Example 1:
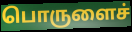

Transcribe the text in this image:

பொருளைச்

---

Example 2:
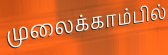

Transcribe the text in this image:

முலைக்காம்பில்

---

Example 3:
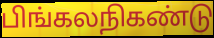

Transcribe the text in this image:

பிங்கலநிகண்டு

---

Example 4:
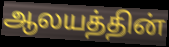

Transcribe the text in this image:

ஆலயத்தின்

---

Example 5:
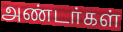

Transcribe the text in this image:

அண்டர்கள்